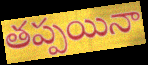
తప్పయినా